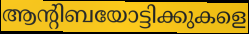
ആന്റിബയോട്ടിക്കുകളെ